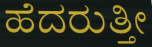
ಹೆದರುತ್ತೀ